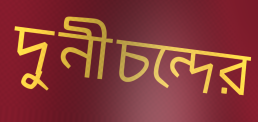
দুনীচন্দের